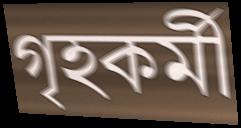
গৃহকর্মী